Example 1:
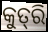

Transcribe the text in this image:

କୁତ୍‌ରି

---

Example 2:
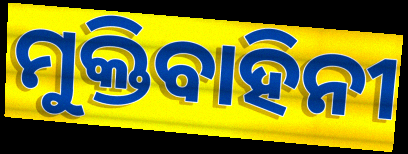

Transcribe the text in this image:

ମୁକ୍ତିବାହିନୀ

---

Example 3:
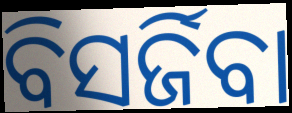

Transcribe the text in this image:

ବିସର୍ଜିବା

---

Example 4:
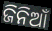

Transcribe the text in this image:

ଜିନିଆଁ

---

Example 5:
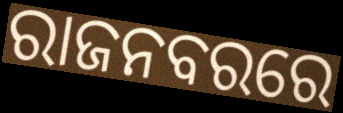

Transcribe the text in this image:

ରାଜନବରରେ